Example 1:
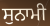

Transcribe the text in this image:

ਸੁਨਾਮੀ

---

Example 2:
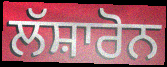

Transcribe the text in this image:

ਲੱਸ਼ਾਰੋਨ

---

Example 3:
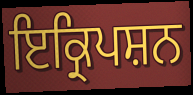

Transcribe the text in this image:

ਇਕ੍ਰਿਪਸ਼ਨ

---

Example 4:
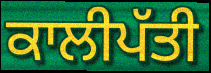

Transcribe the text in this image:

ਕਾਲੀਪੱਤੀ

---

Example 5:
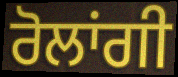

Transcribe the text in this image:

ਰੋਲਾਂਗੀ